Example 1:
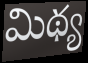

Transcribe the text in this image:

మిథ్య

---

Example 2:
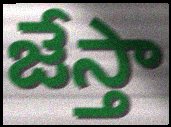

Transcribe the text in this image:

జేస్తా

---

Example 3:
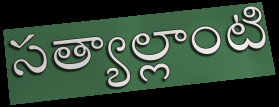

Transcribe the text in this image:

సత్యాల్లాంటి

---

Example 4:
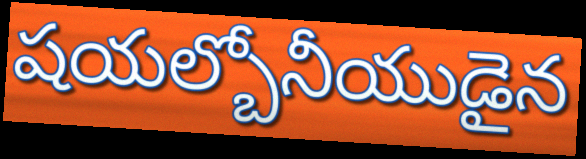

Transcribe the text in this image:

షయల్బోనీయుడైన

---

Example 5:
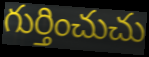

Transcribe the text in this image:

గుర్తించుచు